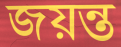
জয়ন্ত